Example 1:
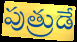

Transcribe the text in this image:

పుత్రుడే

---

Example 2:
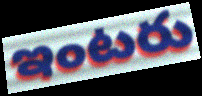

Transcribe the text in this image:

ఇంటరు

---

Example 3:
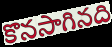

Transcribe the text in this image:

కొనసాగినది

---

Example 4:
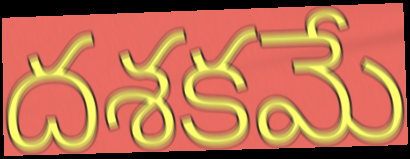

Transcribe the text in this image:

దశకమే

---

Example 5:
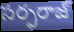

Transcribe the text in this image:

సర్ఫరాజ్